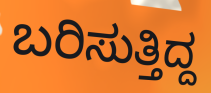
ಬರಿಸುತ್ತಿದ್ದ